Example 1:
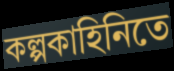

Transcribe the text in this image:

কল্পকাহিনিতে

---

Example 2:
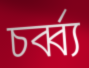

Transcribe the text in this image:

চর্ব্ব্য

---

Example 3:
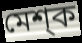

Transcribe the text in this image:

মেশ্ক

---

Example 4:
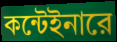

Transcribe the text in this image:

কন্টেইনারে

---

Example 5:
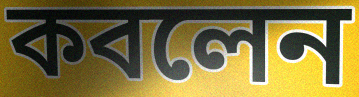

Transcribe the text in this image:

কবলেন